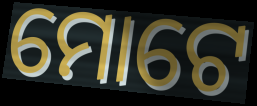
ମୋଟେ